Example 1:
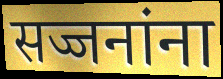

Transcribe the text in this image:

सज्जनांना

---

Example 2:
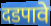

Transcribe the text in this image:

दडपावे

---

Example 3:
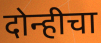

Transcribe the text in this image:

दोन्हीचा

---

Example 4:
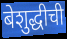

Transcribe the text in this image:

बेशुद्धीची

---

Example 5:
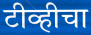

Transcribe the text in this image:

टीव्हीचा